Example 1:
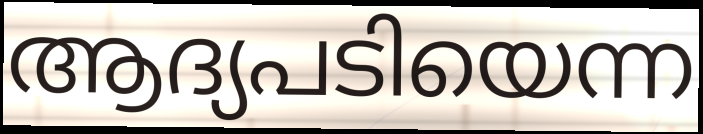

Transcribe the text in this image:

ആദ്യപടിയെന്ന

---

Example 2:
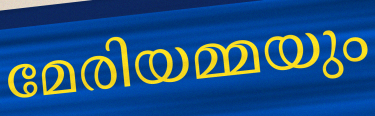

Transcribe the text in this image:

മേരിയമ്മയും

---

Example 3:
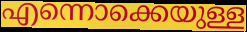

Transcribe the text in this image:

എന്നൊക്കെയുള്ള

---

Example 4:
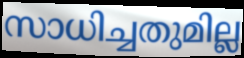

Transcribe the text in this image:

സാധിച്ചതുമില്ല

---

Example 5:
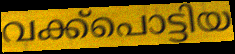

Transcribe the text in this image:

വക്ക്പൊട്ടിയ